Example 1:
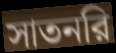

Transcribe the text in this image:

সাতনরি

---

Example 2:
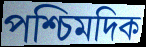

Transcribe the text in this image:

পশ্চিমদিক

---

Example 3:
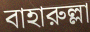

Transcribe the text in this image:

বাহারুল্লা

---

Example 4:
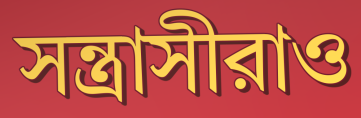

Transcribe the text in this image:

সন্ত্রাসীরাও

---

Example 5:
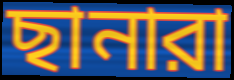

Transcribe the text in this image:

ছানারা